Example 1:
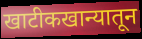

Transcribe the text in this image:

खाटीकखान्यातून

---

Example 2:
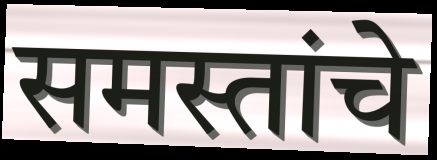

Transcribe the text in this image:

समस्तांचे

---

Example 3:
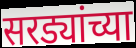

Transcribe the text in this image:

सरड्यांच्या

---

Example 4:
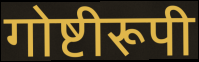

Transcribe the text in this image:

गोष्टीरूपी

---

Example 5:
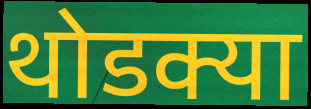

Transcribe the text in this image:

थोडक्या